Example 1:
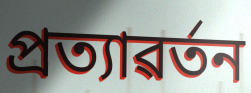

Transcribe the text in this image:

প্ৰত্যাৱৰ্তন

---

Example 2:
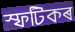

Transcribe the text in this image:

স্ফটিকৰ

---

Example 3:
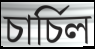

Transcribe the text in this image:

চাৰ্চিল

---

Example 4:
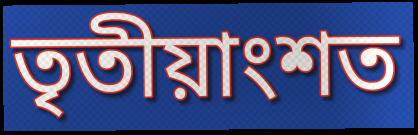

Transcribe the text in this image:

তৃতীয়াংশত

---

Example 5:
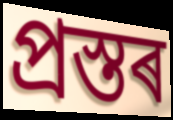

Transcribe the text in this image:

প্ৰস্তৰ